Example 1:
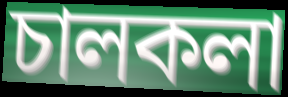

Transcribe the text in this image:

চালকলা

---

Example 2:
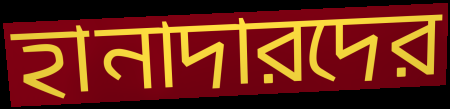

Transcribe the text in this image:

হানাদারদের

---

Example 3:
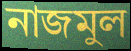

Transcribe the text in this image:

নাজমুল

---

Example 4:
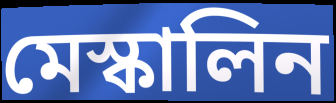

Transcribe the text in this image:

মেস্কালিন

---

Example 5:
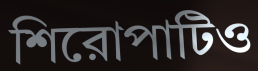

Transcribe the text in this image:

শিরোপাটিও